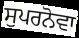
ਸੁਪਰਨੋਵਾ